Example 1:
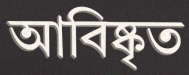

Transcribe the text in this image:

আবিষ্কৃত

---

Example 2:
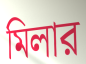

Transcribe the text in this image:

মিলার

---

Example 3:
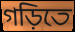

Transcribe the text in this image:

গড়িতে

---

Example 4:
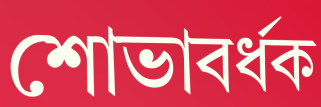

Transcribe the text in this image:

শোভাবর্ধক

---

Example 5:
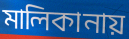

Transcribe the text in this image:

মালিকানায়